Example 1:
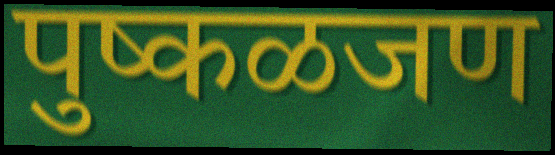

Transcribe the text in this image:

पुष्कळजण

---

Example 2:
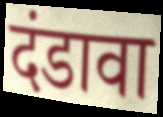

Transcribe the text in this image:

दंडावा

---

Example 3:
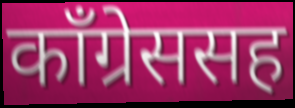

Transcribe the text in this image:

काँग्रेससह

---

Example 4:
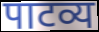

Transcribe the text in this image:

पाटव्य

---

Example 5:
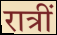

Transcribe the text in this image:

रात्रीं